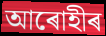
আৰোহীৰ